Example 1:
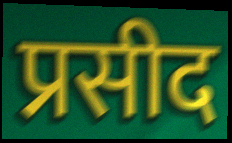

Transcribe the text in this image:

प्रसीद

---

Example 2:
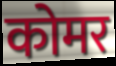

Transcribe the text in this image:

कोमर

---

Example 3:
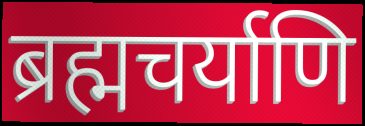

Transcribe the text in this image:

ब्रह्मचर्याणि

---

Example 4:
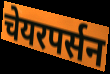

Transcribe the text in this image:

चेयरपर्सन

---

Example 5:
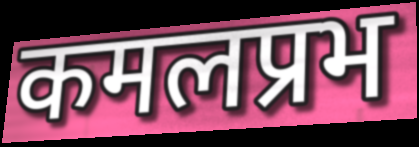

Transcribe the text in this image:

कमलप्रभ